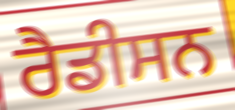
ਰੈਡੀਸਨ